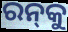
ରନ୍‌କୁ